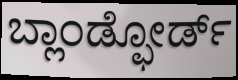
ಬ್ಲಾಂಡ್ಫೋರ್ಡ್